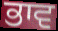
ਭਾਵ